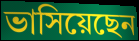
ভাসিয়েছেন